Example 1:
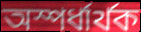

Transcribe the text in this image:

অস্পৰ্ধাৰ্থক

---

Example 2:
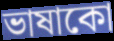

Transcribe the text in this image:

ভাষাকো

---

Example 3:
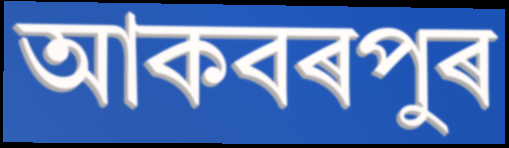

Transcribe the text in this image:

আকবৰপুৰ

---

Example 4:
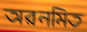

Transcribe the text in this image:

অৱনমিত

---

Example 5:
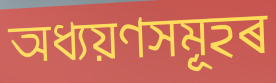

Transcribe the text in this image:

অধ্যয়ণসমূহৰ